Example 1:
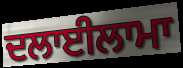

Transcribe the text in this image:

ਦਲਾਈਲਾਮਾ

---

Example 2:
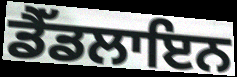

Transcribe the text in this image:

ਡੈੱਡਲਾਇਨ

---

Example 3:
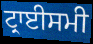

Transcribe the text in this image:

ਟ੍ਰਾਈਸਮੀ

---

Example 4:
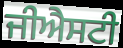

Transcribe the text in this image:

ਜੀਐਸਟੀ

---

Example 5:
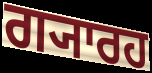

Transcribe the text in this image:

ਗ੍ਯਾਰਹ